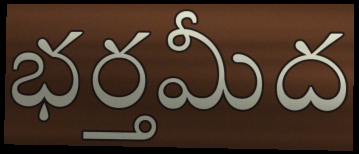
భర్తమీద